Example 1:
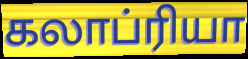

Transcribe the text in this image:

கலாப்ரியா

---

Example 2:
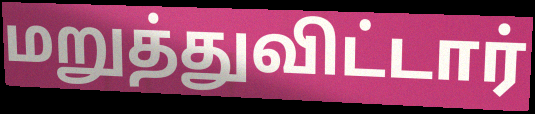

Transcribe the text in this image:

மறுத்துவிட்டார்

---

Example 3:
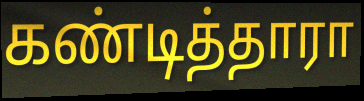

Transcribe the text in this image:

கண்டித்தாரா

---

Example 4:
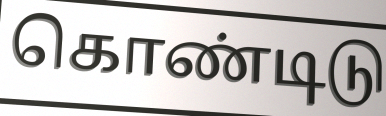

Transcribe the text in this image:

கொண்டிடு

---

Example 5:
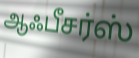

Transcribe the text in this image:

ஆஃபீசர்ஸ்